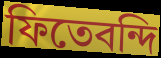
ফিতেবন্দি